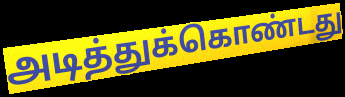
அடித்துக்கொண்டது